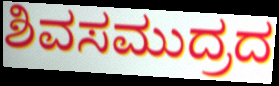
ಶಿವಸಮುದ್ರದ